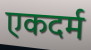
एकदर्म